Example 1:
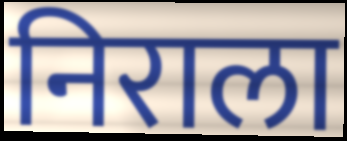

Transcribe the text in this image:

निराला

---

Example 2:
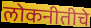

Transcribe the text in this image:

लोकनीतीचे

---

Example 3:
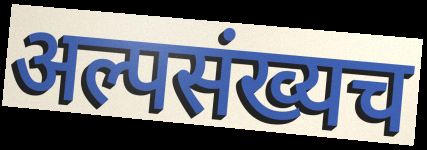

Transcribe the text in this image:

अल्पसंख्यच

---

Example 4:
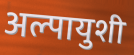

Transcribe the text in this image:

अल्पायुशी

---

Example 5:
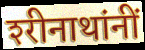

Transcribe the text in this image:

श्रीनाथांनीं